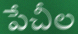
పేచీల